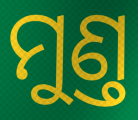
ମୁଣ୍ତ